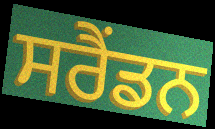
ਸਰੈਂਡਨ